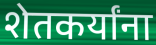
शेतकर्यांना